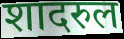
शादरुल